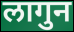
लागुन